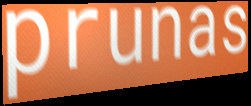
prunas